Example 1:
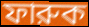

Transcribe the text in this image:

ফাৰুক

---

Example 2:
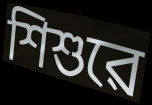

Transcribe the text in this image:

শিশুৱে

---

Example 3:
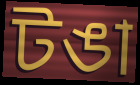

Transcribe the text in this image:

টঙা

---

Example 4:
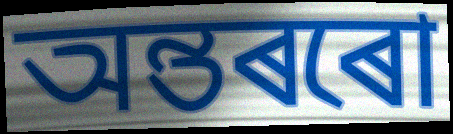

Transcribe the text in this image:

অন্তৰৰো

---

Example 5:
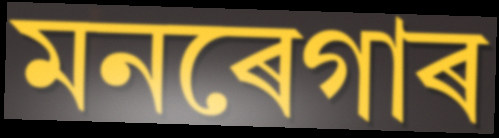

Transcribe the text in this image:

মনৰেগাৰ